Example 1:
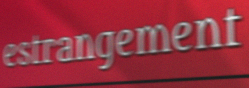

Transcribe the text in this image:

estrangement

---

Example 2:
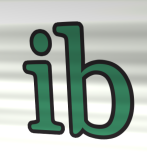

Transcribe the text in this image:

ib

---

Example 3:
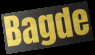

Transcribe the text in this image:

Bagde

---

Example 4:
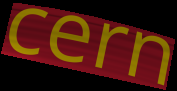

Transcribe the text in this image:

cern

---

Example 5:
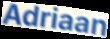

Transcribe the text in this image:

Adriaan